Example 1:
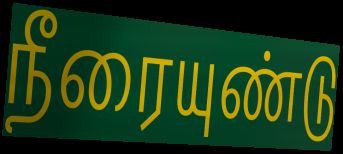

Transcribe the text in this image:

நீரையுண்டு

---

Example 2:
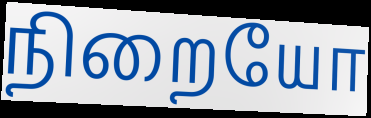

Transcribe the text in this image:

நிறையோ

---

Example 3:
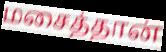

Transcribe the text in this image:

மசைத்தான்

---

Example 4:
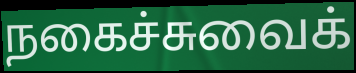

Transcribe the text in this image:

நகைச்சுவைக்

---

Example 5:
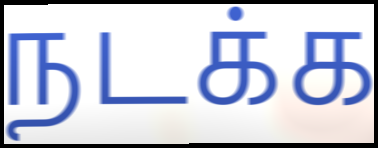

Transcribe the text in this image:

நடக்க